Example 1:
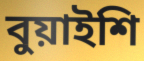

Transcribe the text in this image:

বুয়াইশি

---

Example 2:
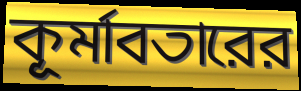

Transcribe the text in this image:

কূর্মাবতারের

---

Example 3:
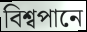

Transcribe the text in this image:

বিশ্বপানে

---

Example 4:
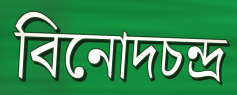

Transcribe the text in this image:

বিনোদচন্দ্র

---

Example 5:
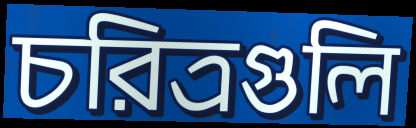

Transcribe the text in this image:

চরিত্রগুলি